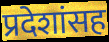
प्रदेशांसह